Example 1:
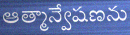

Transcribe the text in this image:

ఆత్మాన్వేషణను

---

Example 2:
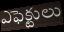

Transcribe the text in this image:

ఎఫెక్టులు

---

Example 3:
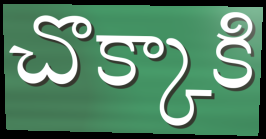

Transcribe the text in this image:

చొక్కాకి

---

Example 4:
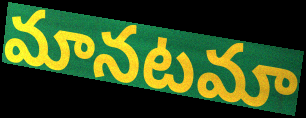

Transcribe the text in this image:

మానటమా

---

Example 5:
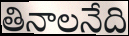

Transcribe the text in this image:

తినాలనేది